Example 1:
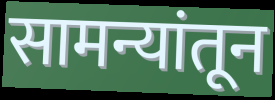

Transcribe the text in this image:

सामन्यांतून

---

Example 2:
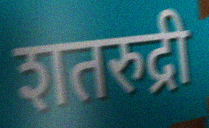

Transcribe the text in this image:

शतरुद्री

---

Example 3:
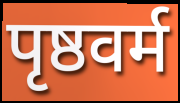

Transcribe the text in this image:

पृष्ठवर्म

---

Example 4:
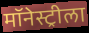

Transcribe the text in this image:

मॉनेस्ट्रीला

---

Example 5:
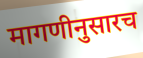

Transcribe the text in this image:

मागणीनुसारच